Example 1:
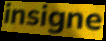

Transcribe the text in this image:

insigne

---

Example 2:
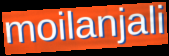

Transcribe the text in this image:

moilanjali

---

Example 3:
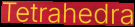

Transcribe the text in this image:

Tetrahedra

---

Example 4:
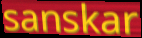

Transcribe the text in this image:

sanskar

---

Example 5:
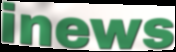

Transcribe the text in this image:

inews